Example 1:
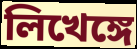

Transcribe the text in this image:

লিখেঙ্গে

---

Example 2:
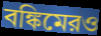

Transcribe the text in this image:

বঙ্কিমেরও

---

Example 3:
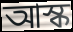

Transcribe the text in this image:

আস্ক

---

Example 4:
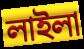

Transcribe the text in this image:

লাইলা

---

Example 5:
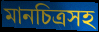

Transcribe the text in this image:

মানচিত্রসহ